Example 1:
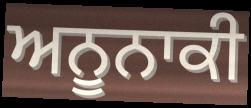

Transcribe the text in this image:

ਅਨੂਨਾਕੀ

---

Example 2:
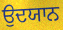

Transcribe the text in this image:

ਉਦਯਾਨ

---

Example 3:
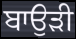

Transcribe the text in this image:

ਬਾਉੜੀ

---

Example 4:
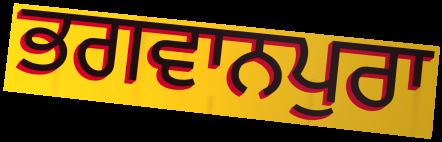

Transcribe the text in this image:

ਭਗਵਾਨਪੁਰਾ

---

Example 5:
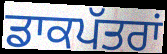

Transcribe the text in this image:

ਡਾਕਪੱਤਰਾਂ